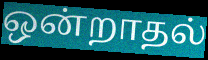
ஒன்றாதல்